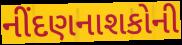
નીંદણનાશકોની